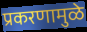
प्रकरणामुळे